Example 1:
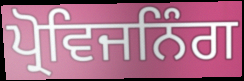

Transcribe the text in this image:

ਪ੍ਰੋਵਿਜਨਿੰਗ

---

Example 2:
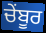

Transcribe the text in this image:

ਚੇਂਬੂਰ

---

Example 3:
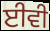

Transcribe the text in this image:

ਈਵੀ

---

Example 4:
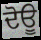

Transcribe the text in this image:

ਦੋਊ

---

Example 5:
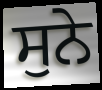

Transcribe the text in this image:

ਸੁਨੇ